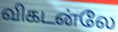
விகடன்லே